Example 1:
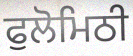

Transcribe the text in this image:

ਫੁਲੋਮਿਠੀ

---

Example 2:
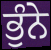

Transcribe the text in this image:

ਭੁੰਨੇ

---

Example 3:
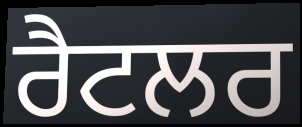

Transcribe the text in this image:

ਰੈਟਲਰ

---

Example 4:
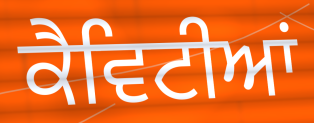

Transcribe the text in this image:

ਕੈਵਿਟੀਆਂ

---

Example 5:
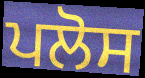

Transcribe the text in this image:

ਪਲੋਸ